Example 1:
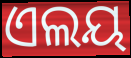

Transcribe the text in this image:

ଏଲୟ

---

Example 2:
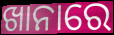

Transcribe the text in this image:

ଖାନାରେ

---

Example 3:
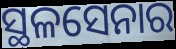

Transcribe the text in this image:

ସ୍ଥଳସେନାର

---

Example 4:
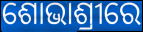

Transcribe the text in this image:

ଶୋଭାଶ୍ରୀରେ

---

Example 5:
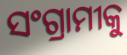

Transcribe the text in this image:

ସଂଗ୍ରାମୀକୁ